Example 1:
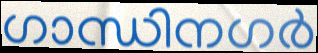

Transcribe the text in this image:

ഗാന്ധിനഗർ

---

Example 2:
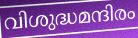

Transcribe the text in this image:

വിശുദ്ധമന്ദിരം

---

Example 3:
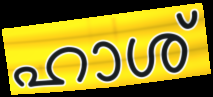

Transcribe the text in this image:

ഹാശ്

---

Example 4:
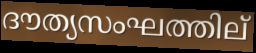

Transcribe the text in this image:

ദൗത്യസംഘത്തില്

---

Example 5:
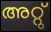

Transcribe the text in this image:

അറ്റു്